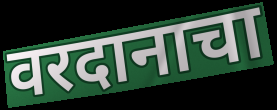
वरदानाचा